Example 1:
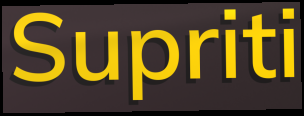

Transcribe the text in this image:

Supriti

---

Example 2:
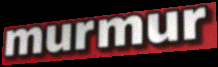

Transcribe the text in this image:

murmur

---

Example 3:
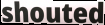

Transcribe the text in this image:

shouted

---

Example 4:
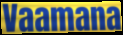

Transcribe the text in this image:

Vaamana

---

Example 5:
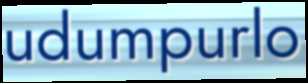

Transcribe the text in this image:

udumpurlo